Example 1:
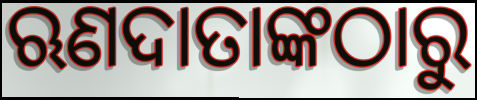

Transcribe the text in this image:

ଋଣଦାତାଙ୍କଠାରୁ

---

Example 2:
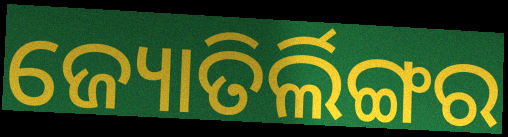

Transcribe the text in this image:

ଜ୍ୟୋତିର୍ଲିଙ୍ଗର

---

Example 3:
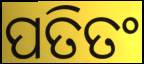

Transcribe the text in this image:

ପତିତଂ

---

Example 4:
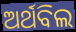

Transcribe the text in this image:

ଅର୍ଥବିଲ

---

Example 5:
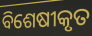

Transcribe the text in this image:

ବିଶେଷୀକୃତ